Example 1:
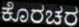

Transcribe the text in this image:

ಕೊರಚರ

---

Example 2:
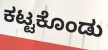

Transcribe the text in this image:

ಕಟ್ಟಕೊಂಡು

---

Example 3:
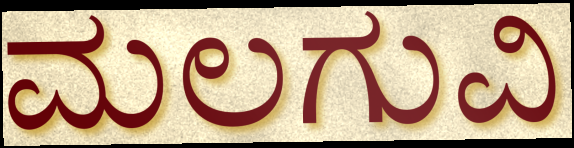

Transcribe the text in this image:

ಮಲಗುವಿ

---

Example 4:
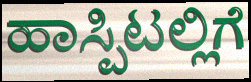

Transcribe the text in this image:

ಹಾಸ್ಪಿಟಲ್ಲಿಗೆ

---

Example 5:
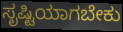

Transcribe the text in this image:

ಸೃಷ್ಟಿಯಾಗಬೇಕು